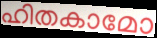
ഹിതകാമോ